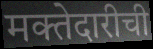
मक्तेदारीची